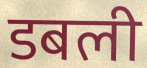
डबली